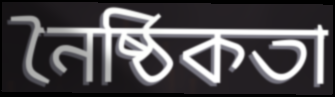
নৈষ্ঠিকতা